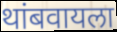
थांबवायला